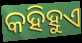
କହିହୁଏ